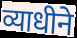
व्याधीने